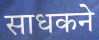
साधकने